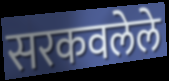
सरकवलेले